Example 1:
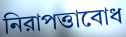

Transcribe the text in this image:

নিরাপত্তাবোধ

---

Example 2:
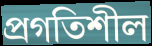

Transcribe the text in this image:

প্রগতিশীল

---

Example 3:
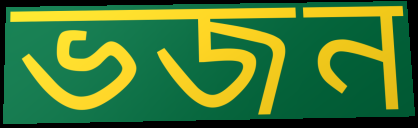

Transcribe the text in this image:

ভজন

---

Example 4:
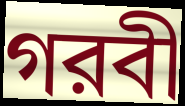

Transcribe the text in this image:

গরবী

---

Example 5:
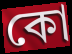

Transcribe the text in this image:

কো